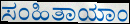
ಸಂಹಿತಾಯಾಂ